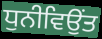
ਧੁਨੀਵਿਉਂਤ